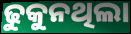
ଢୁକୁନଥିଲା